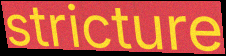
stricture